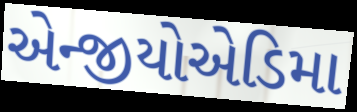
એન્જીયોએડિમા